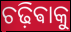
ଚଢ଼ିଵାକୁ